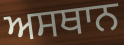
ਅਸਥਾਨ